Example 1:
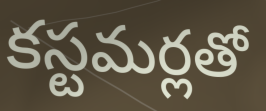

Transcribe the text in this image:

కస్టమర్లతో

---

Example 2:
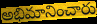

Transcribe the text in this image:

అభిమానించారు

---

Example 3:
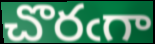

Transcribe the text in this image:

చొరఁగా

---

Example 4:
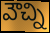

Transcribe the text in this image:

వౌచ్ని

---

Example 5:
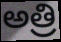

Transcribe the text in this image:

అత్రి